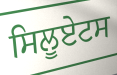
ਸਿਲੂਏਟਸ